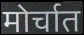
मोर्चात